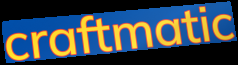
craftmatic